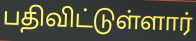
பதிவிட்டுள்ளார்